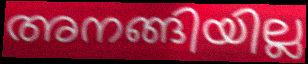
അനങ്ങിയില്ല